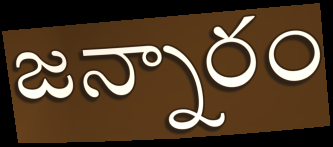
జన్నారం